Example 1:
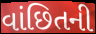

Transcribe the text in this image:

વાંછિતની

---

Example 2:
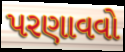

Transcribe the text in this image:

પરણાવવો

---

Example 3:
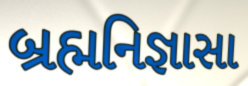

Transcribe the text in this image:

બ્રહ્મનિજ્ઞાસા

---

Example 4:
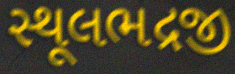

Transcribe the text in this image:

સ્થૂલભદ્રજી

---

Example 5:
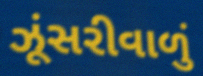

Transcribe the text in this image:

ઝૂંસરીવાળું